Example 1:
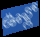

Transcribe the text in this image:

ఊళ్లో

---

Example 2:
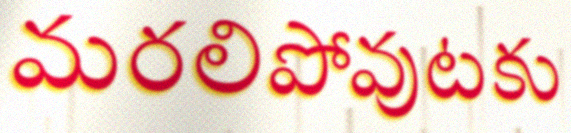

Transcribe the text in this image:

మరలిపోవుటకు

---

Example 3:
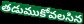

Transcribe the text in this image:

తడుముకోవలసిన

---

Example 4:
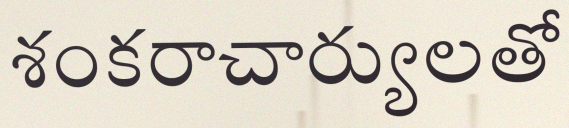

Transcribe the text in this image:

శంకరాచార్యులతో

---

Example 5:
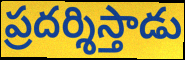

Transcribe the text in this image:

ప్రదర్శిస్తాడు